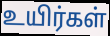
உயிர்கள்